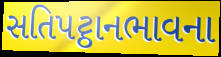
સતિપટ્ઠાનભાવના